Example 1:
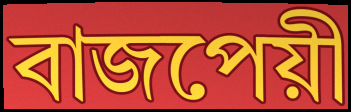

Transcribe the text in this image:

বাজপেয়ী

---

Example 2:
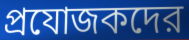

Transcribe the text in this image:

প্রযোজকদের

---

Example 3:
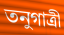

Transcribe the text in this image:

তনুগাত্রী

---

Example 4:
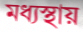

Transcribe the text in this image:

মধ্যস্থায়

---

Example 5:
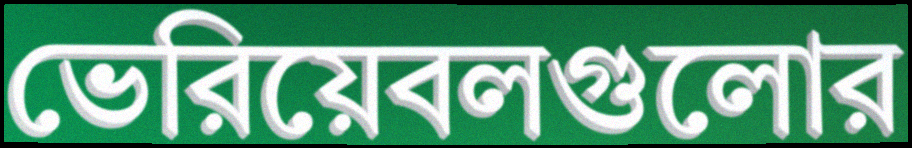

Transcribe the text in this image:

ভেরিয়েবলগুলোর